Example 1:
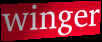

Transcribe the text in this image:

winger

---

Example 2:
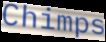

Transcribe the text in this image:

Chimps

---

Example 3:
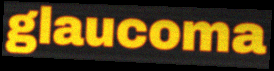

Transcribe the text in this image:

glaucoma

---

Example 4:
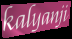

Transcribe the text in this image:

kalyanji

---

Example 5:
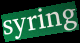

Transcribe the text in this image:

syring